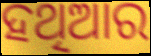
ହଥିଆର